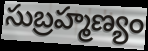
సుబ్రహ్మణ్యం